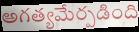
అగత్యమేర్పడింది